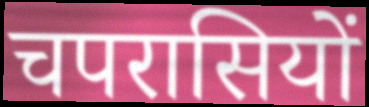
चपरासियों